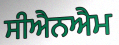
ਸੀਐਨਐਮ